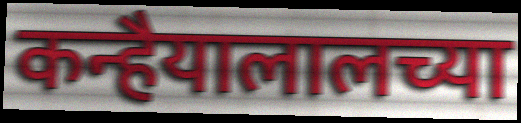
कन्हैयालालच्या